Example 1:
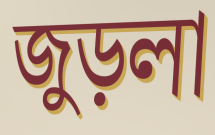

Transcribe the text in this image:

জুড়লা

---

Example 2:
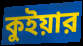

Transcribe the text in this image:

কুইয়ার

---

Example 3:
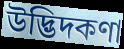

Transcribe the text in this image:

উদ্ভিদকণা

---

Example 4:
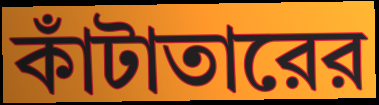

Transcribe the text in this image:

কাঁটাতারের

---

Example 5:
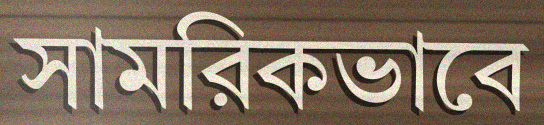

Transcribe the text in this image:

সামরিকভাবে